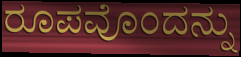
ರೂಪವೊಂದನ್ನು